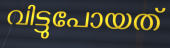
വിട്ടുപോയത്